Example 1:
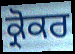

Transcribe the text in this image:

ਕ੍ਰੋਕਰ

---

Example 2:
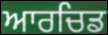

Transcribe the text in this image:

ਆਰਚਿਡ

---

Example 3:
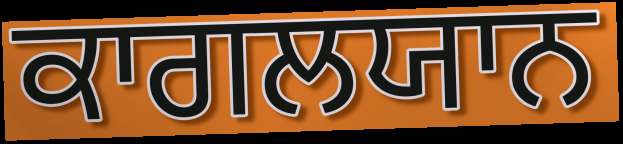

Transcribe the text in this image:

ਕਾਗਲਯਾਨ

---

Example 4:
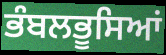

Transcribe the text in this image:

ਭੰਬਲਭੂਸਿਆਂ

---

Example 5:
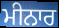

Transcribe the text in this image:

ਮੀਨਾਰ